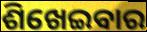
ଶିଖେଇବାର